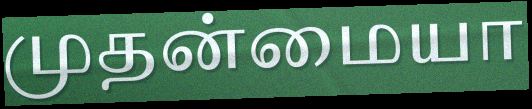
முதன்மையா